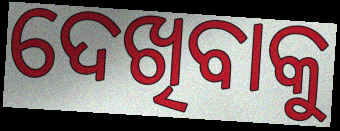
ଦେଖିବାକୁ